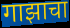
गाझाचा